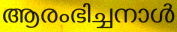
ആരംഭിച്ചനാൾ